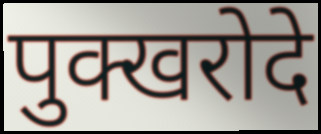
पुक्खरोदे